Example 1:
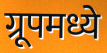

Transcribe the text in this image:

ग्रूपमध्ये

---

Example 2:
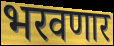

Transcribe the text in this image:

भरवणार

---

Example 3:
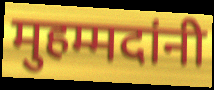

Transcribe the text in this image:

मुहम्मदांनी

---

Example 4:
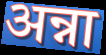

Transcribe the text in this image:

अन्ना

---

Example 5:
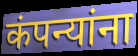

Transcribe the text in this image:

कंपन्यांना